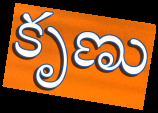
కృణు